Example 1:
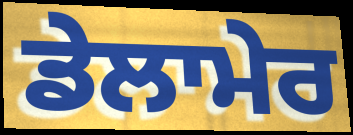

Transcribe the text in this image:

ਡੇਲਾਮੇਰ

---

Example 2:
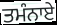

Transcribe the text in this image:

ਤਮੰਨਾਏ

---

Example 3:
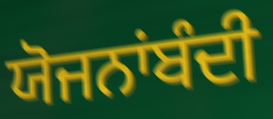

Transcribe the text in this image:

ਯੋਜਨਾਂਬੰਦੀ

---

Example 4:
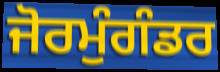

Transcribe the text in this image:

ਜੋਰਮੁੰਗੰਡਰ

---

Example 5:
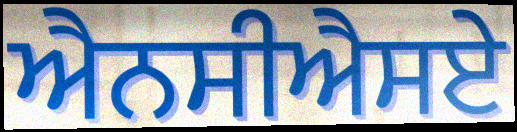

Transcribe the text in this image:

ਐਨਸੀਐਸਏ